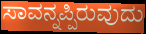
ಸಾವನ್ನಪ್ಪಿರುವುದು